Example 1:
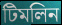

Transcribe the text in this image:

টিমলিন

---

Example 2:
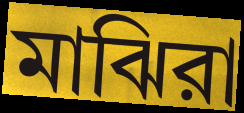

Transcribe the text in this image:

মাঝিরা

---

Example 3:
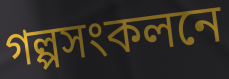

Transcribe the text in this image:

গল্পসংকলনে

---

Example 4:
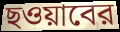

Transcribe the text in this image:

ছওয়াবের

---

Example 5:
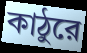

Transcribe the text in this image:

কাঠুরে